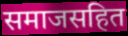
समाजसहित